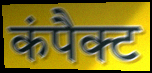
कंपैक्ट